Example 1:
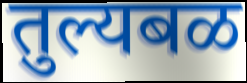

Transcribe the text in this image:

तुल्यबळ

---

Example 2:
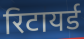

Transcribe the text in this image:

रिटायर्ड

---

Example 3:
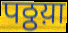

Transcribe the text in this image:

पठ्ठय़ा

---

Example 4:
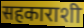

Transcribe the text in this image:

सहकाराशी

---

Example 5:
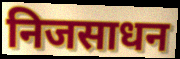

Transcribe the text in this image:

निजसाधन